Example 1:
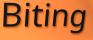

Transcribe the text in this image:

Biting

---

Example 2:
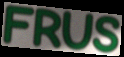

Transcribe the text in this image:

FRUS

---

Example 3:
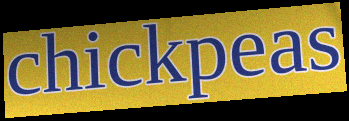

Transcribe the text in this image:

chickpeas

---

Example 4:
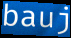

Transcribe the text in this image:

bauj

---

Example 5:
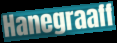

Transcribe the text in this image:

Hanegraaff